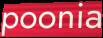
poonia